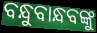
ବନ୍ଧୁବାନ୍ଧବଙ୍କୁ